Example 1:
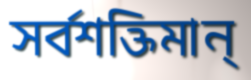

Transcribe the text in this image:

সর্বশক্তিমান্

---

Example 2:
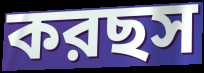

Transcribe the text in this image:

করছস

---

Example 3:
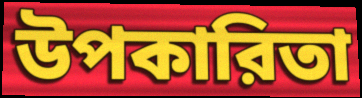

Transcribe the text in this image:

উপকারিতা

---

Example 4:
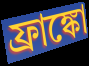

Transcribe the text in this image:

ফ্রাঙ্কো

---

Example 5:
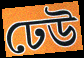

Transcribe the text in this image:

ঢেউ